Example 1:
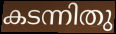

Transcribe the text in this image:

കടന്നിതു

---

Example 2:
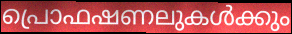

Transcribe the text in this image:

പ്രൊഫഷണലുകൾക്കും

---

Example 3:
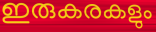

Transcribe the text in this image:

ഇരുകരകളും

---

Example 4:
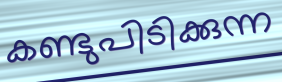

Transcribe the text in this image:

കണ്ടുപിടിക്കുന്ന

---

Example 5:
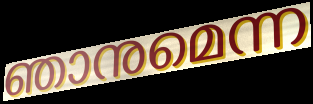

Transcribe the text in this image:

ഞാനുമെന്ന